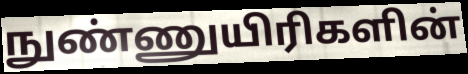
நுண்ணுயிரிகளின்